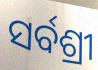
ସର୍ବଶ୍ରୀ